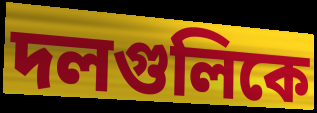
দলগুলিকে